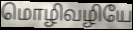
மொழிவழியே